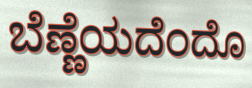
ಬೆಣ್ಣೆಯದೆಂದೊ